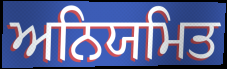
ਅਨਿਯਮਿਤ